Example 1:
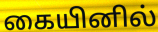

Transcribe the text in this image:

கையினில்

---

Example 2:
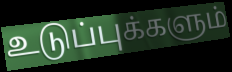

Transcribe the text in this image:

உடுப்புக்களும்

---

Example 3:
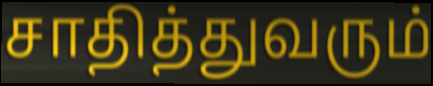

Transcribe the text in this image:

சாதித்துவரும்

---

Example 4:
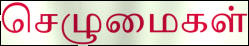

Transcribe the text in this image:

செழுமைகள்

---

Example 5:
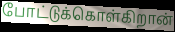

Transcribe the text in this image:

போட்டுக்கொள்கிறான்